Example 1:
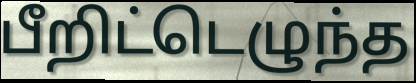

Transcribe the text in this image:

பீறிட்டெழுந்த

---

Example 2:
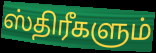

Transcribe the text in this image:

ஸ்திரீகளும்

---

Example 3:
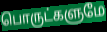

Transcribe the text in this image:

பொருட்களுமே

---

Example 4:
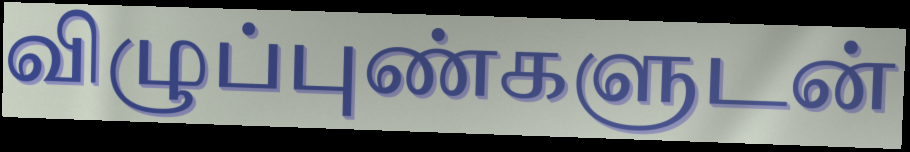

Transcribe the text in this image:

விழுப்புண்களுடன்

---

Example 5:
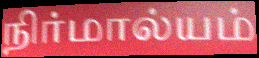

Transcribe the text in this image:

நிர்மால்யம்